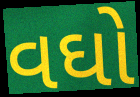
વઘો